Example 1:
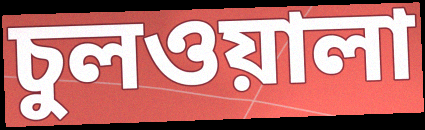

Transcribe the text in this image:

চুলওয়ালা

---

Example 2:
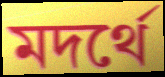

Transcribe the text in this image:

মদর্থে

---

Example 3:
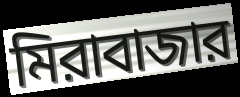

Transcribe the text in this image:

মিরাবাজার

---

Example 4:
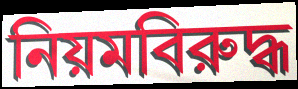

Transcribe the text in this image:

নিয়মবিরুদ্ধ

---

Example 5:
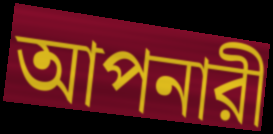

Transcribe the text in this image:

আপনারী